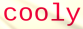
cooly